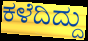
ಕಳೆದಿದ್ದು